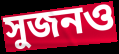
সুজনও